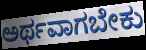
ಅರ್ಥವಾಗಬೇಕು